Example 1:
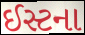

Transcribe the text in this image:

ઈસ્ટના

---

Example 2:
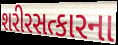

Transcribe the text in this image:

શરીરસત્કારના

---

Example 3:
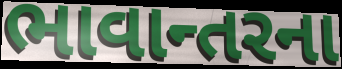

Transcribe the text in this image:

ભાવાન્તરના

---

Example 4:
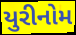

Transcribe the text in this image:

યુરીનોમ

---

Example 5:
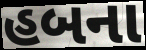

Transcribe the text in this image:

હબના